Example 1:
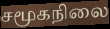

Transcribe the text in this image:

சமூகநிலை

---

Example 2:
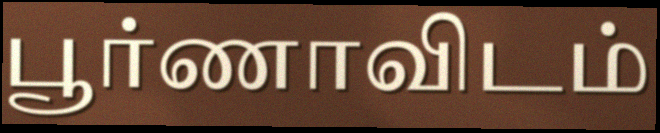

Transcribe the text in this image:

பூர்ணாவிடம்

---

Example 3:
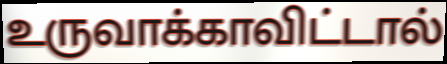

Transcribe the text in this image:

உருவாக்காவிட்டால்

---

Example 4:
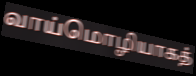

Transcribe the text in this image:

வாய்மொழியாகத்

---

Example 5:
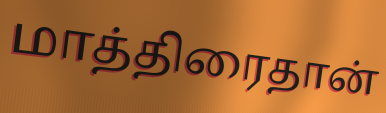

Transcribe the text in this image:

மாத்திரைதான்